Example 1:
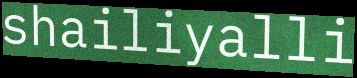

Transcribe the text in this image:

shailiyalli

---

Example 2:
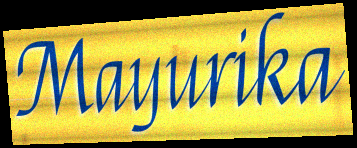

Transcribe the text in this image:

Mayurika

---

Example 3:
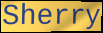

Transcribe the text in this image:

Sherry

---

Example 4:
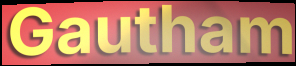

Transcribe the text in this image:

Gautham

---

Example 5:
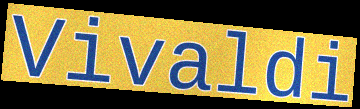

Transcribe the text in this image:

Vivaldi